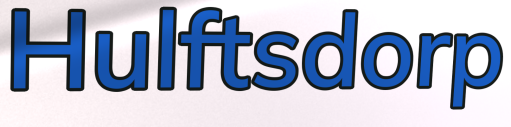
Hulftsdorp